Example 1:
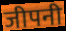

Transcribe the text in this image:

जीपनी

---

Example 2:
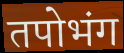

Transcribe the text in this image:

तपोभंग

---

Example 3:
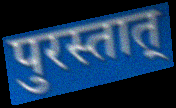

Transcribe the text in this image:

पुरस्तात्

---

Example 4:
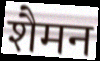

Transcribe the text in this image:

शैमन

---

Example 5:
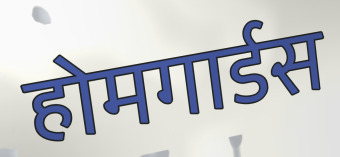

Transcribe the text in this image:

होमगार्डस